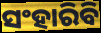
ସଂହାରିବି